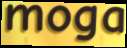
moga